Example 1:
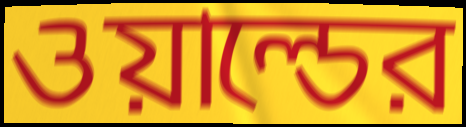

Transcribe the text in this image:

ওয়াল্ডের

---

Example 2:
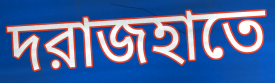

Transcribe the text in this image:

দরাজহাতে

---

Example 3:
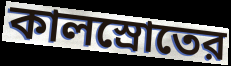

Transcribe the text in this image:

কালস্রোতের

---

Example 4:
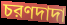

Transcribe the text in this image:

চরণদাদা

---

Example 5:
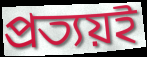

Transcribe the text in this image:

প্রত্যয়ই